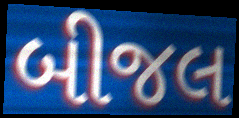
બીજલ